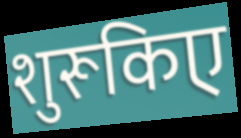
शुरूकिए